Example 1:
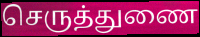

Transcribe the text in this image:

செருத்துணை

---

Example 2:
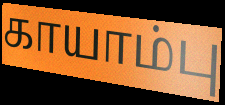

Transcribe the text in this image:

காயாம்பு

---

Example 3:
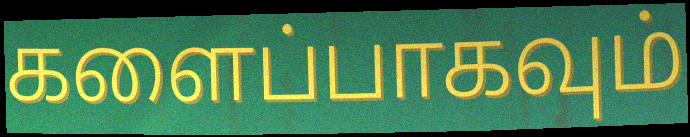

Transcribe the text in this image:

களைப்பாகவும்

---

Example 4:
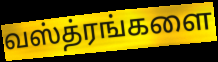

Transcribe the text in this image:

வஸ்த்ரங்களை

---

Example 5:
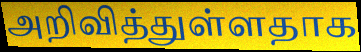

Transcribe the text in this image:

அறிவித்துள்ளதாக